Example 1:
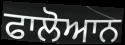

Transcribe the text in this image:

ਫਾਲੋਆਨ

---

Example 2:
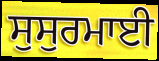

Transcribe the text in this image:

ਸੁਸੁਰਮਾਈ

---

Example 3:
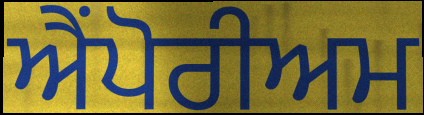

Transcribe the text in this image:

ਐਂਪੋਰੀਅਮ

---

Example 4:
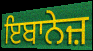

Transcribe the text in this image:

ਇਬਾਨੇਜ਼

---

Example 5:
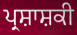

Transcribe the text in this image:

ਪ੍ਰਸ਼ਾਸ਼ਕੀ